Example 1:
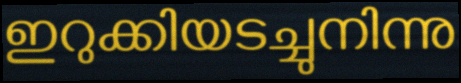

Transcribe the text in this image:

ഇറുക്കിയടച്ചുനിന്നു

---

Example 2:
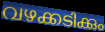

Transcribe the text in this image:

വഴക്കടിക്കും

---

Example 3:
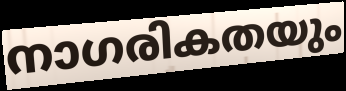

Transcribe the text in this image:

നാഗരികതയും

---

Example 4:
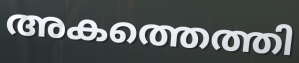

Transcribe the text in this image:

അകത്തെത്തി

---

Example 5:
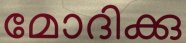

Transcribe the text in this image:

മോദിക്കു